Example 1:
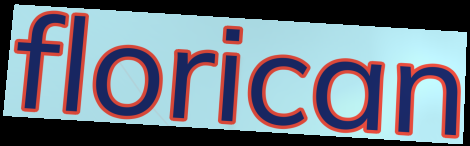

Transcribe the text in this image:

florican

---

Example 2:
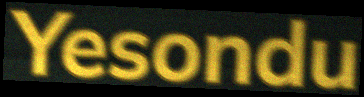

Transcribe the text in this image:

Yesondu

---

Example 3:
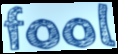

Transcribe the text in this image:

fool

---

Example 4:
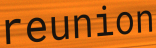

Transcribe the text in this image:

reunion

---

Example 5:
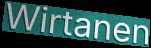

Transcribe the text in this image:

Wirtanen